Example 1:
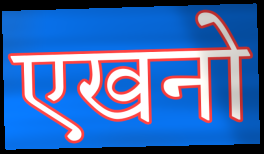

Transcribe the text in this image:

एखनो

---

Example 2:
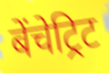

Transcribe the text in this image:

बेंचेट्रिट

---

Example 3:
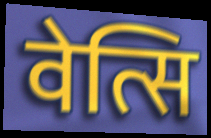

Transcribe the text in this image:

वेत्सि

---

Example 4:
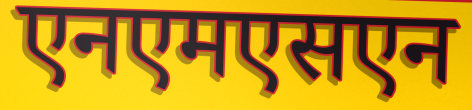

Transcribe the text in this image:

एनएमएसएन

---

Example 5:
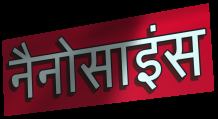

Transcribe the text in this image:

नैनोसाइंस